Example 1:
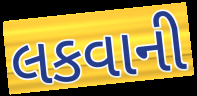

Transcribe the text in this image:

લકવાની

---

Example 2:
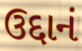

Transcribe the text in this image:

ઉદ્દાનં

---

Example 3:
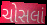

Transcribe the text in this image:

ચોસલાં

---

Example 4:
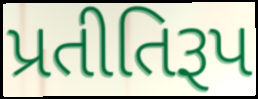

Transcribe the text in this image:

પ્રતીતિરૂપ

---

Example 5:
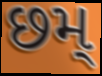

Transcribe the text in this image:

છમ્